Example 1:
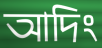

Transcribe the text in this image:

আদিং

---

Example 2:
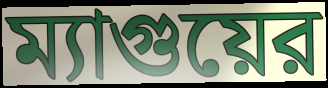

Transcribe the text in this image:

ম্যাগুয়ের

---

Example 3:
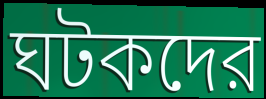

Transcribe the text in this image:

ঘটকদের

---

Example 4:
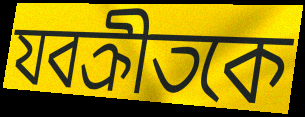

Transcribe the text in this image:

যবক্রীতকে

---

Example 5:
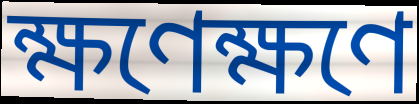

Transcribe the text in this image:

ক্ষণেক্ষণে